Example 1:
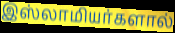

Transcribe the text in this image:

இஸ்லாமியர்களால்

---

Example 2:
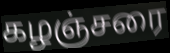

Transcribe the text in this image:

கழஞ்சரை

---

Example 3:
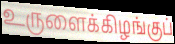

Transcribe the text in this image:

உருளைக்கிழங்குப்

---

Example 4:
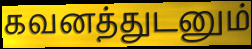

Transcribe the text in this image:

கவனத்துடனும்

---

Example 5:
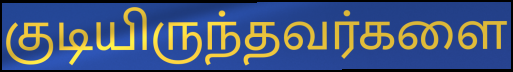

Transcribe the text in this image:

குடியிருந்தவர்களை